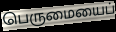
பெருமையைப்